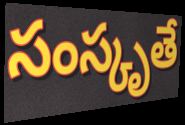
సంస్కృతే